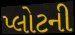
પ્લોટની